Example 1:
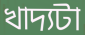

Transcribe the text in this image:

খাদ্যটা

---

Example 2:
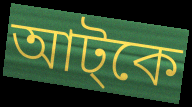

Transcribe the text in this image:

আট্কে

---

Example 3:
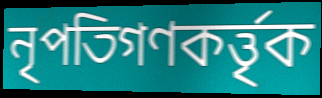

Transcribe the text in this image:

নৃপতিগণকর্ত্তৃক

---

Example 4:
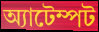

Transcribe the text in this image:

অ্যাটেম্পট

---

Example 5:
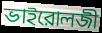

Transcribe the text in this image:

ভাইরোলজী